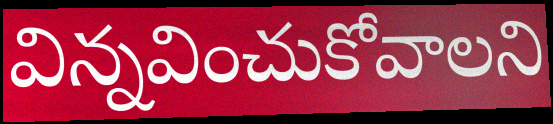
విన్నవించుకోవాలని